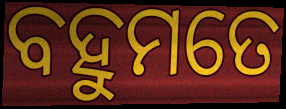
ବହୁମତେ